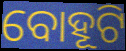
ବୋହୂଟି